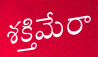
శక్తిమేరా